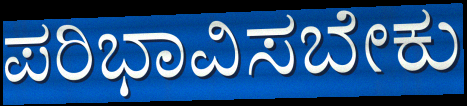
ಪರಿಭಾವಿಸಬೇಕು